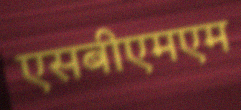
एसबीएमएम